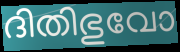
ദിതിഭുവോ